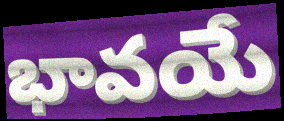
భావయే